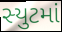
સ્યુટમાં